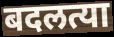
बदलत्या